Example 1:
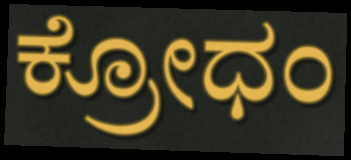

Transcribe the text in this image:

ಕ್ರೋಧಂ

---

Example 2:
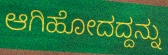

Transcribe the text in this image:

ಆಗಿಹೋದದ್ದನ್ನು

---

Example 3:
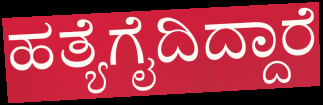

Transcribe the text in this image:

ಹತ್ಯೆಗೈದಿದ್ದಾರೆ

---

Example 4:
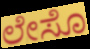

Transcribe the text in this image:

ಲೇಸೊ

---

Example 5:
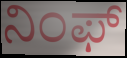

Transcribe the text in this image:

ನಿಂಫ್